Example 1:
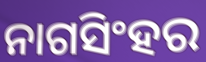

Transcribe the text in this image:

ନାଗସିଂହର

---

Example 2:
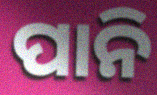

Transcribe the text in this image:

ପାନି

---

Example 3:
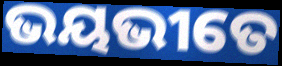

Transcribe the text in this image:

ଭୟଭୀତେ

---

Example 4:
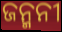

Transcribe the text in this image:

ଜନ୍ମନୀ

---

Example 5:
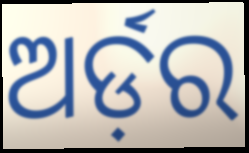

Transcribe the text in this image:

ଅର୍ଡ଼ର